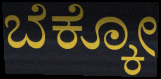
ಬೆಕ್ಕೋ